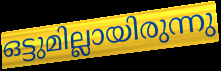
ഒട്ടുമില്ലായിരുന്നു